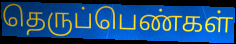
தெருப்பெண்கள்